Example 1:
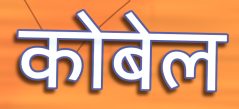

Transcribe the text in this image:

कोबेल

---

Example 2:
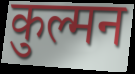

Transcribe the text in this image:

कुल्मन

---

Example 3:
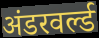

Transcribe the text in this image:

अंडरवर्ल्ड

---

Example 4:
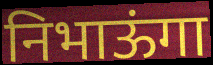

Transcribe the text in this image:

निभाऊंगा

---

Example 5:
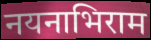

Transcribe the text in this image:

नयनाभिराम